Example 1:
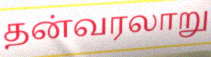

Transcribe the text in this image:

தன்வரலாறு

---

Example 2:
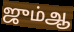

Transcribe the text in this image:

ஜும்ஆ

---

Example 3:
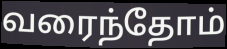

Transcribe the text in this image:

வரைந்தோம்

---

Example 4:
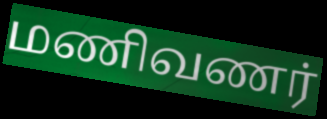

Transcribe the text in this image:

மணிவணர்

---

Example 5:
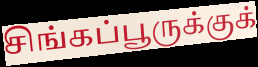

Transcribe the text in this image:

சிங்கப்பூருக்குக்